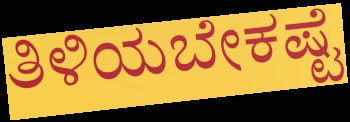
ತಿಳಿಯಬೇಕಷ್ಟೆ